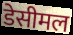
डेसीमल